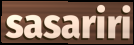
sasariri